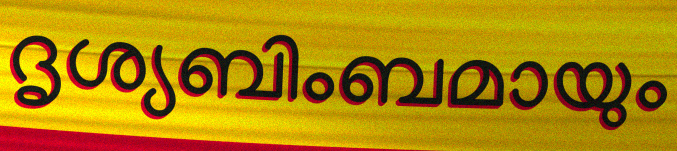
ദൃശ്യബിംബമായും